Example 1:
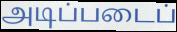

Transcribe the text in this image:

அடிப்படைப்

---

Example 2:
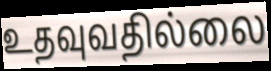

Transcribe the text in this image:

உதவுவதில்லை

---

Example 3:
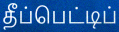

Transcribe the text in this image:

தீப்பெட்டிப்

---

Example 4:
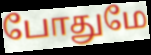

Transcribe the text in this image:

போதுமே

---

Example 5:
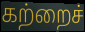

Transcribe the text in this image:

கற்றைச்